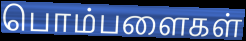
பொம்பளைகள்